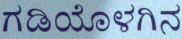
ಗಡಿಯೊಳಗಿನ